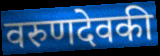
वरुणदेवकी